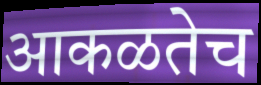
आकळतेच